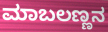
ಮಾಬಲಣ್ಣನ